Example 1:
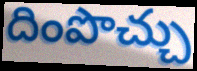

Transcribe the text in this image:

దింపొచ్చు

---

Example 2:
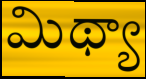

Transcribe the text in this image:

మిథ్యా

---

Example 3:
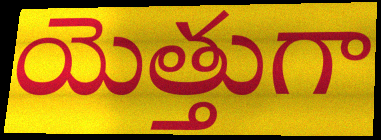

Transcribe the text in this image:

యెత్తుగా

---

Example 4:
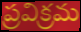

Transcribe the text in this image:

ప్రవిక్రమ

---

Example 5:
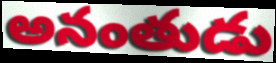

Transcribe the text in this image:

అనంతుడు